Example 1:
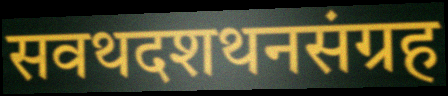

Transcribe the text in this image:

सवथदशथनसंग्रह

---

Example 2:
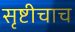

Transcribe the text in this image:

सृष्टीचाच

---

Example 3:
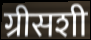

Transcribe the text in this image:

ग्रीसशी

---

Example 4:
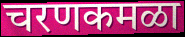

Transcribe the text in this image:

चरणकमळा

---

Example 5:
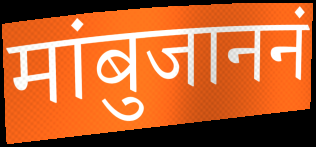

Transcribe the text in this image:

मांबुजाननं